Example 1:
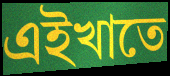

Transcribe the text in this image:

এইখাতে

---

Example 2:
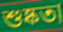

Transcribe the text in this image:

শুষ্কতা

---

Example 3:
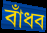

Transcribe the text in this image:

বাঁধব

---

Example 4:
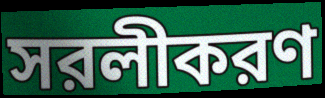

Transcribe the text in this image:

সরলীকরণ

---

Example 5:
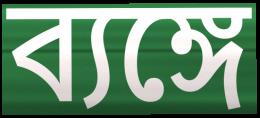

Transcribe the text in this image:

ব্যঙ্গে